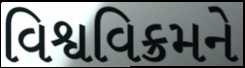
વિશ્વવિક્રમને